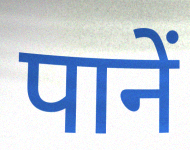
पानें